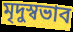
মৃদুস্বভাব